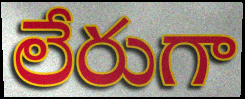
లేరుగా